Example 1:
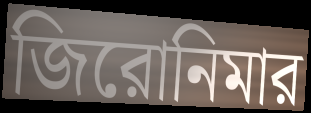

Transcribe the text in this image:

জিরোনিমার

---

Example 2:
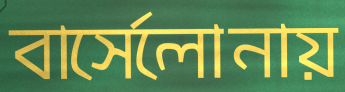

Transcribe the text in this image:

বার্সেলোনায়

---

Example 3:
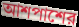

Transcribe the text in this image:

আশপাশের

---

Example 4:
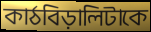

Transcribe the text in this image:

কাঠবিড়ালিটাকে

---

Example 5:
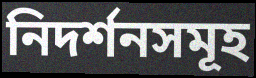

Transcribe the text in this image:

নিদর্শনসমূহ